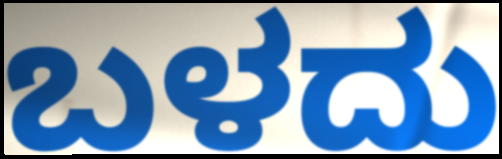
ಬಳದು